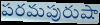
పరమపురుషా